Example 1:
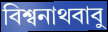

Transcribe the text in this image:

বিশ্বনাথবাবু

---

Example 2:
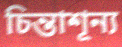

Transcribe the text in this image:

চিন্তাশূন্য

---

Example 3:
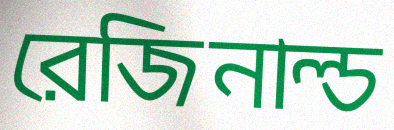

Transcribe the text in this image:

রেজিনাল্ড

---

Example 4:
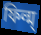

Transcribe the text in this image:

ফিল্ম্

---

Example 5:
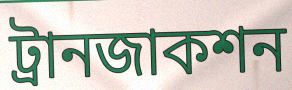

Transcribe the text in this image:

ট্রানজাকশন